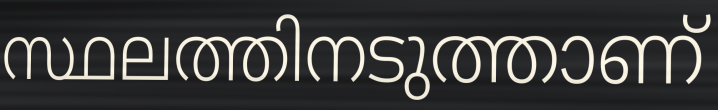
സ്ഥലത്തിനടുത്താണ്